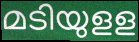
മടിയുളള